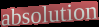
absolution